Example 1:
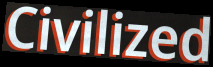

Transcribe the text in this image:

Civilized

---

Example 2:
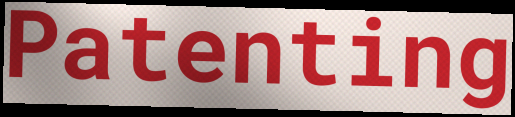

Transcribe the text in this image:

Patenting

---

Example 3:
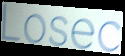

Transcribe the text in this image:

Losec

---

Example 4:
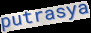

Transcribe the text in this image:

putrasya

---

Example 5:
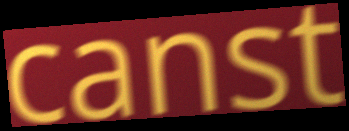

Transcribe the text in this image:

canst